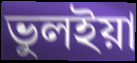
ভুলইয়া